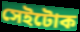
সেইটোক